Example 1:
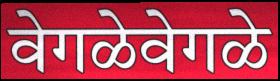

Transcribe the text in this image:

वेगळेवेगळे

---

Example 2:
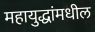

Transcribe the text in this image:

महायुद्धांमधील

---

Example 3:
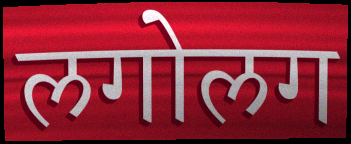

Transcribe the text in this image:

लगोलग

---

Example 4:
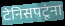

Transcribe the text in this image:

टेनिसपटूंना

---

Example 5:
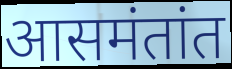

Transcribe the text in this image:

आसमंतांत